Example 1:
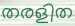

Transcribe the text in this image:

തരളിത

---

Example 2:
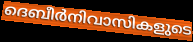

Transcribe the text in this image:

ദെബീർനിവാസികളുടെ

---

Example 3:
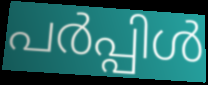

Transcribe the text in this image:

പർപ്പിൾ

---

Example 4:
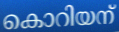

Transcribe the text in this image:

കൊറിയന്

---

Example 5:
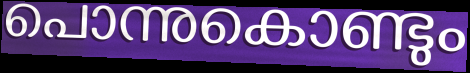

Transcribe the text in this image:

പൊന്നുകൊണ്ടും